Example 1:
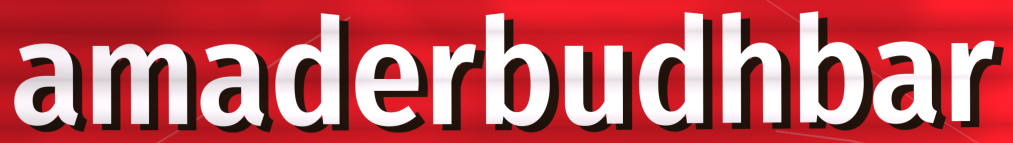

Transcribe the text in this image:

amaderbudhbar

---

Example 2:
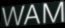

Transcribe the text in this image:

WAM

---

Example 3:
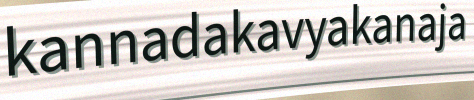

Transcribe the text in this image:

kannadakavyakanaja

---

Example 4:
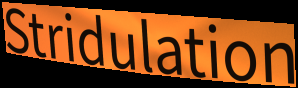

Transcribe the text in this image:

Stridulation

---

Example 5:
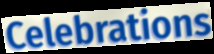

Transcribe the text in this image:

Celebrations